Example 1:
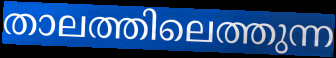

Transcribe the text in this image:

താലത്തിലെത്തുന്ന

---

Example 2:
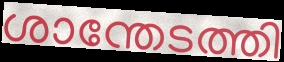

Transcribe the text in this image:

ശാന്തേടത്തി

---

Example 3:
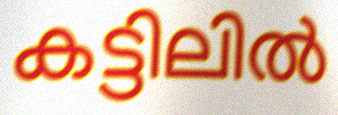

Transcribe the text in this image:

കട്ടിലിൽ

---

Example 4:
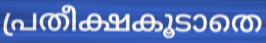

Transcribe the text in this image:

പ്രതീക്ഷകൂടാതെ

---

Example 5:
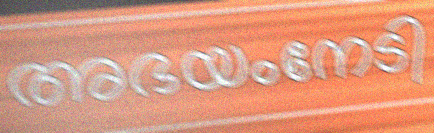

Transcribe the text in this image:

അഭയംനേടി